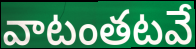
వాటంతటవే